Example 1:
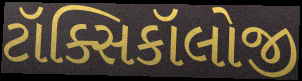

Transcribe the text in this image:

ટૉક્સિકૉલોજી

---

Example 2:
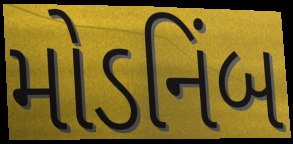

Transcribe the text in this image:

મોડનિંબ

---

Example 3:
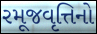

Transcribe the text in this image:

રમૂજવૃત્તિનો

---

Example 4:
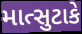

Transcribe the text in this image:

માત્સુટાકે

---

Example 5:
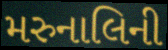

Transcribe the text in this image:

મરુનાલિની